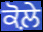
ਕੋਲ਼ੇ